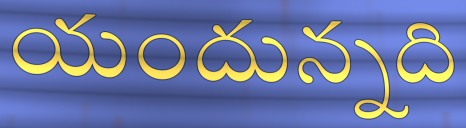
యందున్నది